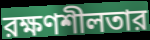
রক্ষণশীলতার